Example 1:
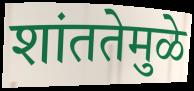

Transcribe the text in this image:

शांततेमुळे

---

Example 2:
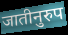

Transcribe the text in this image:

जातीनुरुप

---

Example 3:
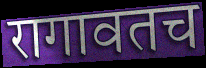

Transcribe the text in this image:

रागावतच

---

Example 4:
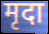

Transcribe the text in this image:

मृदा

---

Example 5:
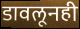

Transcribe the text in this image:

डावलूनही